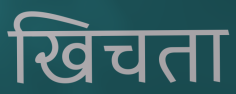
खिचता